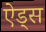
ऐड्स